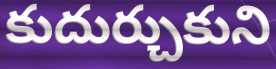
కుదుర్చుకుని